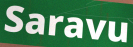
Saravu